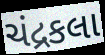
ચંદ્રકલા